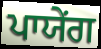
ਪਾਯੇਂਗ